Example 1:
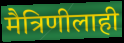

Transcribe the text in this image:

मैत्रिणीलाही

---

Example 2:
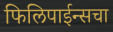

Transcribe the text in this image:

फिलिपाईन्सचा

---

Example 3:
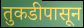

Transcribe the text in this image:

तुकडीपासून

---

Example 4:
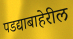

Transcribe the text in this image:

पडद्याबाहेरील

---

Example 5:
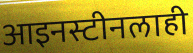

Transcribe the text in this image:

आइनस्टीनलाही